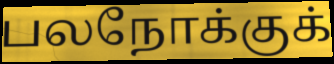
பலநோக்குக்